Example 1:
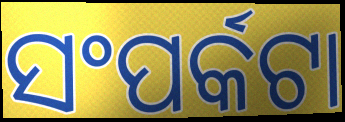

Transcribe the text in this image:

ସଂପର୍କଟା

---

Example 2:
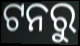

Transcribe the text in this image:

ଟନରୁ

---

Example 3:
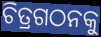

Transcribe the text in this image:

ଚିତ୍ରଗଠନକୁ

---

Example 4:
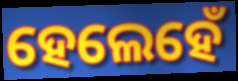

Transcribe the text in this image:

ହେଲେହେଁ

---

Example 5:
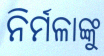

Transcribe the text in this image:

ନିର୍ମଳାଙ୍କୁ